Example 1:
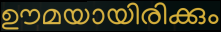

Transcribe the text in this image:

ഊമയായിരിക്കും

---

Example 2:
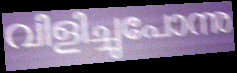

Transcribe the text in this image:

വിളിച്ചുപോന്നു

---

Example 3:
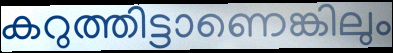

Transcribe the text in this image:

കറുത്തിട്ടാണെങ്കിലും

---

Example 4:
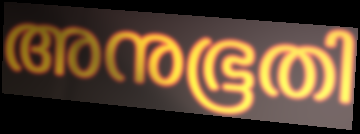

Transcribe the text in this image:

അനുഭൂതി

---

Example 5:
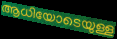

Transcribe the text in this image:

ആധിയോടെയുള്ള